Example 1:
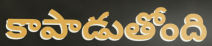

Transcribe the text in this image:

కాపాడుతోంది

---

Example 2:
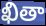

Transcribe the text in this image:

ఖితా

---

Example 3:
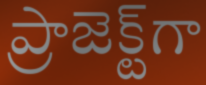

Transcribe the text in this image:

ప్రాజెక్ట్‌గా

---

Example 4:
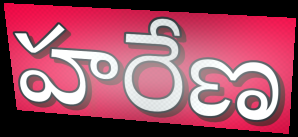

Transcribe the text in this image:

హరేణ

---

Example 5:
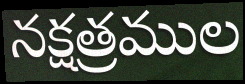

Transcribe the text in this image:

నక్షత్రముల